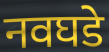
नवघडे